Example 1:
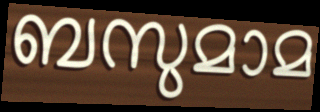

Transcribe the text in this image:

ബസുമാമ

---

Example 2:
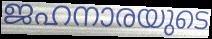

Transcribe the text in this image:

ജഹനാരയുടെ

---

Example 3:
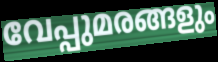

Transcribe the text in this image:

വേപ്പുമരങ്ങളും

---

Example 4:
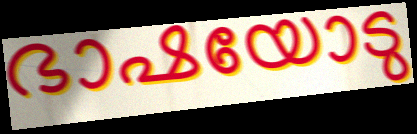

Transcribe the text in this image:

ഭാഷയോടു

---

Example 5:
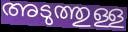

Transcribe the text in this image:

അടുത്തുള്ള